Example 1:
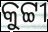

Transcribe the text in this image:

କୁଟ୍ଟୀ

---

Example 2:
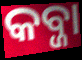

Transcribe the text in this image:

କବ୍ଜା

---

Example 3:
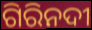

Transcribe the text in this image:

ଗିରିନଦୀ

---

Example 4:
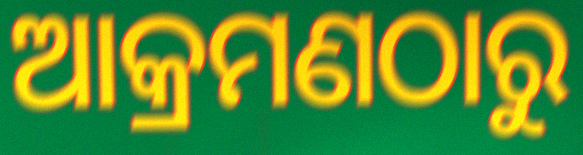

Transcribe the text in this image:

ଆକ୍ରମଣଠାରୁ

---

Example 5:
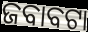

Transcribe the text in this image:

ଜବାବଟା